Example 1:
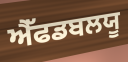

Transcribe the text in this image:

ਐੱਫਡਬਲਯੂ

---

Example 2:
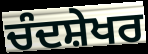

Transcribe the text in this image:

ਚੰਦਸ਼ੇਖਰ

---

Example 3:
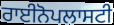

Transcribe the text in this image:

ਰਾਈਨੋਪਲਾਸਟੀ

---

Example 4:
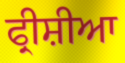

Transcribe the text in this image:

ਫ੍ਰੀਸ਼ੀਆ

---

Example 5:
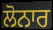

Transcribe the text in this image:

ਲੋਨਾਰ